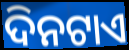
ଦିନଟାଏ